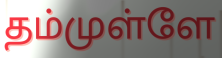
தம்முள்ளே